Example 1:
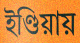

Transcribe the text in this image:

ইণ্ডিয়ায়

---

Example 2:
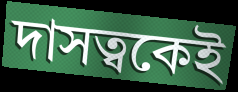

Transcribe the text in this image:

দাসত্বকেই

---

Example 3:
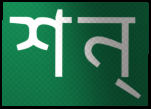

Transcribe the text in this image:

শন্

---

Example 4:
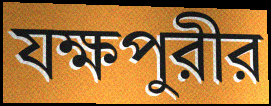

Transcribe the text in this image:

যক্ষপুরীর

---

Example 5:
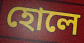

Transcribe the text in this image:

হোলে